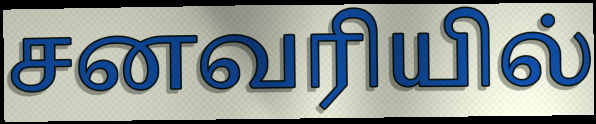
சனவரியில்